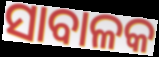
ସାବାଳକ